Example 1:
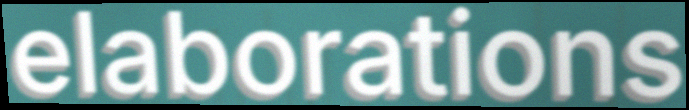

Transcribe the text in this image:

elaborations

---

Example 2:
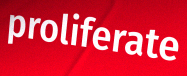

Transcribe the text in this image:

proliferate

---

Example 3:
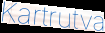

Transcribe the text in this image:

Kartrutva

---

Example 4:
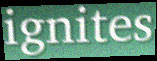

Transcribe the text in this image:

ignites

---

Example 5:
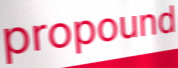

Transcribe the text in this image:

propound